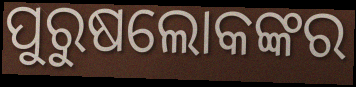
ପୁରୁଷଲୋକଙ୍କର